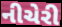
નીચેરી